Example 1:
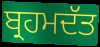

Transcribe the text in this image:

ਬ੍ਰਹਮਦੱਤ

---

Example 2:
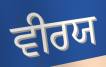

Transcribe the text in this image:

ਵੀਰਯ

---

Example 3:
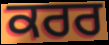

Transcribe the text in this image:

ਕਰਰ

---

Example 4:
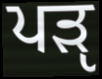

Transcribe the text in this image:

ਪੜੵ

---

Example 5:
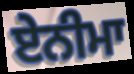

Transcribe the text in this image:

ਏਨੀਮਾ